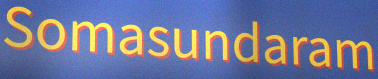
Somasundaram